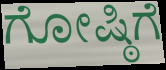
ಗೋಷ್ಠಿಗೆ